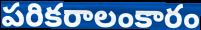
పరికరాలంకారం